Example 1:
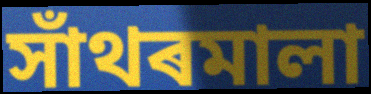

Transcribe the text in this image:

সাঁথৰমালা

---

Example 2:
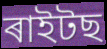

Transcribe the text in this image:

ৰাইটছ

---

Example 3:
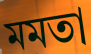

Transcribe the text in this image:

মমতা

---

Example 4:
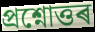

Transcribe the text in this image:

প্ৰশ্নোত্তৰ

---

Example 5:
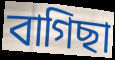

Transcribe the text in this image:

বাগিছা